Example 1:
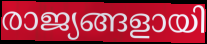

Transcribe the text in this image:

രാജ്യങ്ങളായി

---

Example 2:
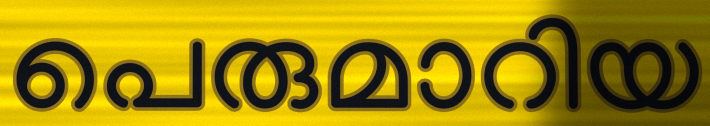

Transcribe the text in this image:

പെരുമാറിയ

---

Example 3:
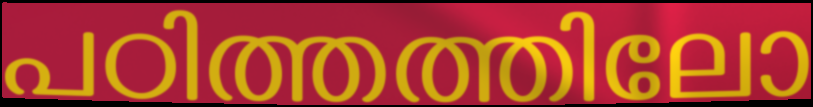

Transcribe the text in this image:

പഠിത്തത്തിലോ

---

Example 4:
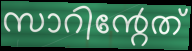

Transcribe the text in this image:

സാറിന്റേത്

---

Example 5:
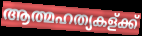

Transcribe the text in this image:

ആത്മഹത്യകള്ക്ക്